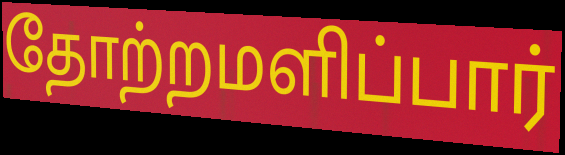
தோற்றமளிப்பார்